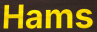
Hams